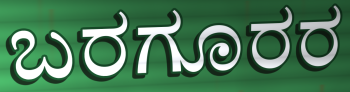
ಬರಗೂರರ